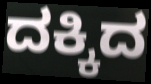
ದಕ್ಕಿದ